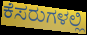
ಕೆಸರುಗಳಲ್ಲಿ